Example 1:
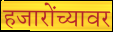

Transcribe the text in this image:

हजारोंच्यावर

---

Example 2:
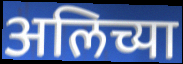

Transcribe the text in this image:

अलिच्या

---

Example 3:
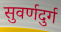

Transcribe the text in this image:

सुवर्णदुर्ग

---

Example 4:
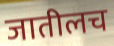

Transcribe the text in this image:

जातीलच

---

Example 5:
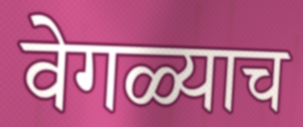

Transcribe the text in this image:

वेगळ्याच